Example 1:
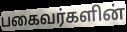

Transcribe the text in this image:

பகைவர்களின்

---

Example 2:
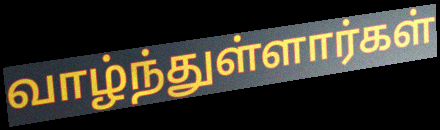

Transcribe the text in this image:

வாழ்ந்துள்ளார்கள்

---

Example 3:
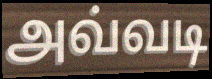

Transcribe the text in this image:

அவ்வடி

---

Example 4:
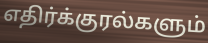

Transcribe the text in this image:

எதிர்க்குரல்களும்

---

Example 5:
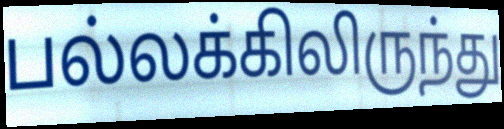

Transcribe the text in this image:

பல்லக்கிலிருந்து